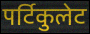
पर्टिकुलेट